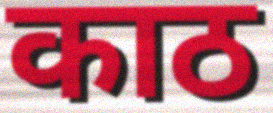
काठ